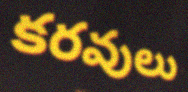
కరవులు